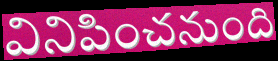
వినిపించనుంది